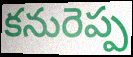
కనురెప్ప